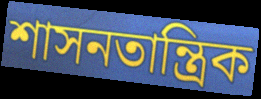
শাসনতান্ত্রিক